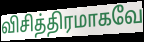
விசித்திரமாகவே